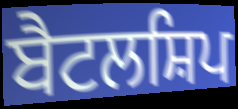
ਬੈਟਲਸ਼ਿਪ